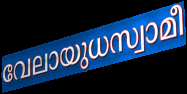
വേലായുധസ്വാമീ